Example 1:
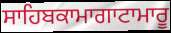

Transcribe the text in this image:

ਸਾਹਿਬਕਾਮਾਗਾਟਾਮਾਰੂ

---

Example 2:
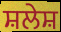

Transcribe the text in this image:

ਸ਼ਲੇਸ਼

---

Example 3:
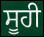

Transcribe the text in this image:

ਸੂਹੀ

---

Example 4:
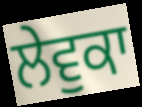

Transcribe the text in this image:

ਲੇਵੁਕਾ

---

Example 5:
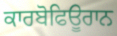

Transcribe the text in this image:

ਕਾਰਬੋਫਿਊਰਾਨ